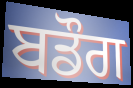
ਬਡੌਗ